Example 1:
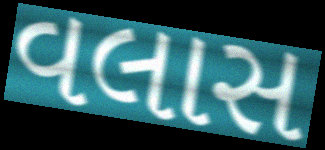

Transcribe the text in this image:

વલાસ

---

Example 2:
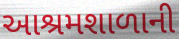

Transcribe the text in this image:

આશ્રમશાળાની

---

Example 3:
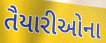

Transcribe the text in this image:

તૈયારીઓના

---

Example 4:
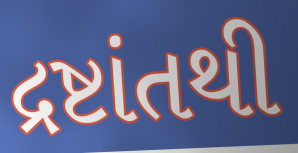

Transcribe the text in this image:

દ્રષ્ટાંતથી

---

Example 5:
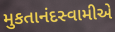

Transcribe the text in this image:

મુકતાનંદસ્વામીએ